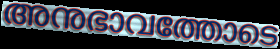
അനുഭാവത്തോടെ